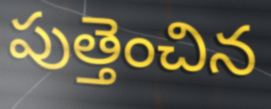
పుత్తెంచిన